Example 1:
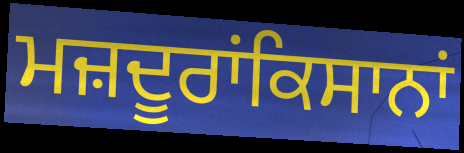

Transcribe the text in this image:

ਮਜ਼ਦੂਰਾਂਕਿਸਾਨਾਂ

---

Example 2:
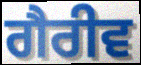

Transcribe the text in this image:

ਗੈਰੀਵ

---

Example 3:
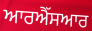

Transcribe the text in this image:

ਆਰਐੱਸਆਰ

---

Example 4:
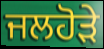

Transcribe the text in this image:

ਜਲਹੋੜੇ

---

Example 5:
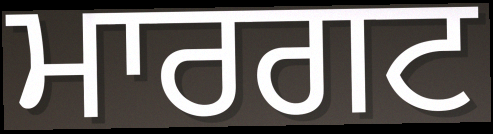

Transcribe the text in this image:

ਮਾਰਗਟ